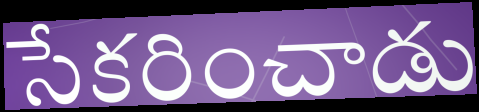
సేకరించాడు